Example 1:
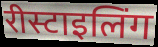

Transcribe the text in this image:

रीस्टाइलिंग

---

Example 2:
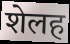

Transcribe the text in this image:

शेलह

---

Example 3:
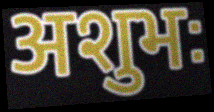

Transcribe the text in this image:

अशुभः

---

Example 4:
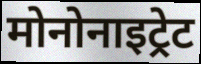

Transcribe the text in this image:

मोनोनाइट्रेट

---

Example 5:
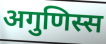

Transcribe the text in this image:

अगुणिस्स